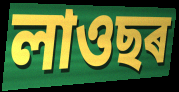
লাওছৰ